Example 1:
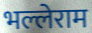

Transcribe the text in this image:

भल्लेराम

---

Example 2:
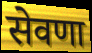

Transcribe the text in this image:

सेवणा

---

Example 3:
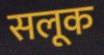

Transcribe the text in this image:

सलूक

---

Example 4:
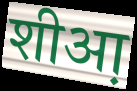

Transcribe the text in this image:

शीआ़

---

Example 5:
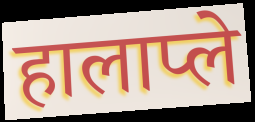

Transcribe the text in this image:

हालाप्ले